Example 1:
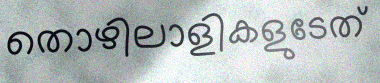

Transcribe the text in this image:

തൊഴിലാളികളുടേത്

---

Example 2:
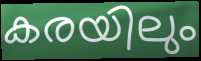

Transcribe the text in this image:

കരയിലും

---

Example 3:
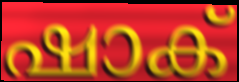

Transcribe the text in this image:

ഷാക്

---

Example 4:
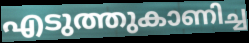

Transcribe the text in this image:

എടുത്തുകാണിച്ച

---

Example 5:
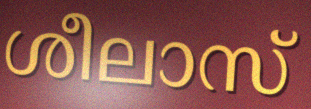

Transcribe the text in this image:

ശീലാസ്